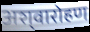
अश्वारोहण